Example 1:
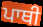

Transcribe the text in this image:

ਪਾਥੀ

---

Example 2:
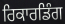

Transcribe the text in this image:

ਰਿਕਾਰਡਿੰਗ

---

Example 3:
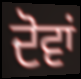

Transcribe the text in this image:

ਦੋਵਾਂ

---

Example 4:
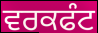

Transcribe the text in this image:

ਵਰਕਫੰਟ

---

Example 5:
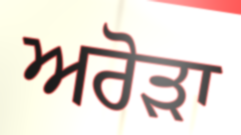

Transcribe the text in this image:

ਅਰੋੜਾ